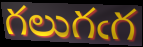
గలుగఁగ